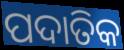
ପଦାତିକ